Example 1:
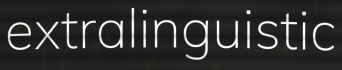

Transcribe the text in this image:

extralinguistic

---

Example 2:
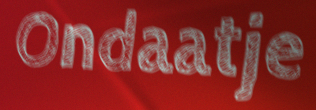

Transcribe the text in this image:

Ondaatje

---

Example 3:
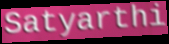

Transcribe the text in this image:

Satyarthi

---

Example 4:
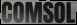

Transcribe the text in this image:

COMSOL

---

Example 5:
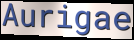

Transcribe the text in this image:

Aurigae